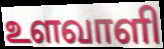
உளவாளி